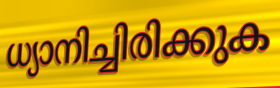
ധ്യാനിച്ചിരിക്കുക